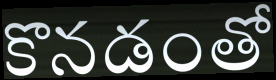
కొనడంతో